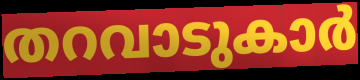
തറവാടുകാർ